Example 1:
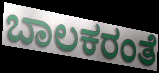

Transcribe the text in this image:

ಬಾಲಕರಂತೆ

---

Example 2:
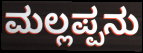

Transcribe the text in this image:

ಮಲ್ಲಪ್ಪನು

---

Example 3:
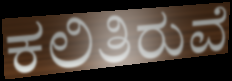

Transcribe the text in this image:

ಕಲಿತಿರುವೆ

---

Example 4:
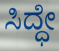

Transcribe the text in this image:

ಸಿದ್ಧೇ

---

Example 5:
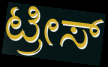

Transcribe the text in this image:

ಟ್ರೀಸ್